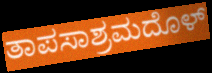
ತಾಪಸಾಶ್ರಮದೊಳ್